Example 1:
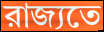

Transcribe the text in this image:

রাজ্যতে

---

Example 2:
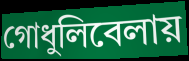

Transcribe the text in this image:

গোধুলিবেলায়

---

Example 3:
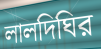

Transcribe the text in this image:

লালদিঘির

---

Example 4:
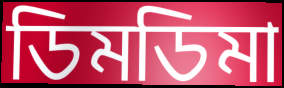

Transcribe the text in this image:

ডিমডিমা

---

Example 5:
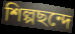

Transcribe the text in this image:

শিল্পছন্দে